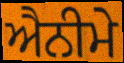
ਐਨੀਮੇ